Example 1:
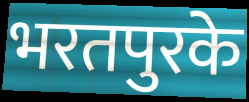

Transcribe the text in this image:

भरतपुरके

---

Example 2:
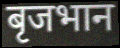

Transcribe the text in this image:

बृजभान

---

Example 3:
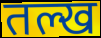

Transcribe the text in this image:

तल्‍ख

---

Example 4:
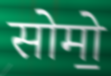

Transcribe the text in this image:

सोमो॒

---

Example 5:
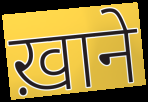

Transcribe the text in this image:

ख़ाने